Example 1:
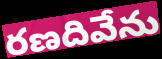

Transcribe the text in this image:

రణదివేను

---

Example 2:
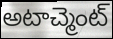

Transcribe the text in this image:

అటాచ్మెంట్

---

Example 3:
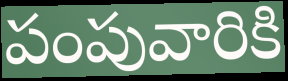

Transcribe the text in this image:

పంపువారికి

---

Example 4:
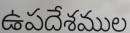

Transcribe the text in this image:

ఉపదేశముల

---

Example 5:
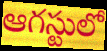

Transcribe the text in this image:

ఆగస్టులో